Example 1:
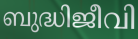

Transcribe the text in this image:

ബുദ്ധിജീവി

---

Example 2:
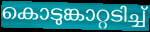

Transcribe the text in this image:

കൊടുങ്കാറ്റടിച്ച്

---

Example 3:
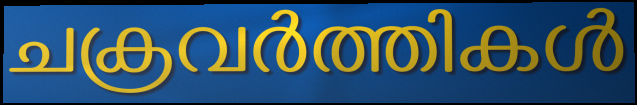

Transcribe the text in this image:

ചക്രവർത്തികൾ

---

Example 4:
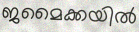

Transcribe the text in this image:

ജമൈക്കയിൽ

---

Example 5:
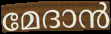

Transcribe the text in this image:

മേദാൻ